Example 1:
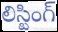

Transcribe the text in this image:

లిస్టింగ్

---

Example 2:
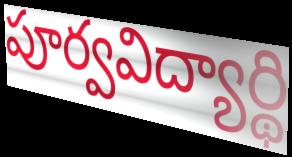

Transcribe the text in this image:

పూర్వవిద్యార్థి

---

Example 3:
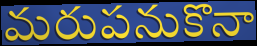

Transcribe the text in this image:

మరుపనుకొనా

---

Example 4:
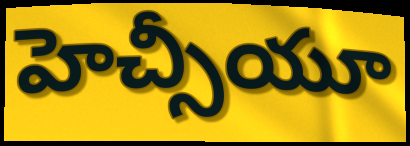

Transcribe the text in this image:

హెచ్సీయూ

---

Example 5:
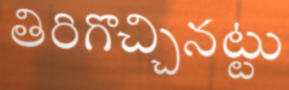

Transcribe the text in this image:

తిరిగొచ్చినట్టు